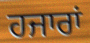
ਹਜਾਰਾਂ